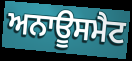
ਅਨਾਊਸਮੈਟ